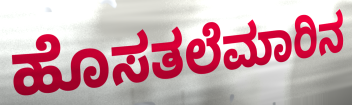
ಹೊಸತಲೆಮಾರಿನ